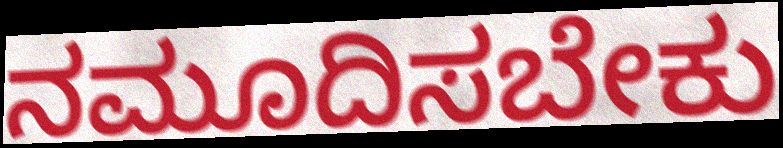
ನಮೂದಿಸಬೇಕು